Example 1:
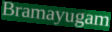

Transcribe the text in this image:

Bramayugam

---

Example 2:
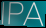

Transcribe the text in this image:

IPA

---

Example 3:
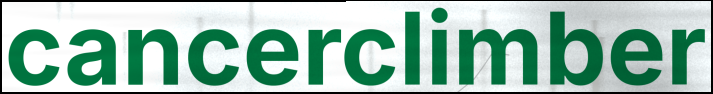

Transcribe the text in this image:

cancerclimber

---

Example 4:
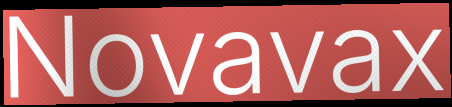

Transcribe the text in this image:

Novavax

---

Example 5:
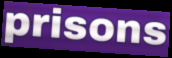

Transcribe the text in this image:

prisons